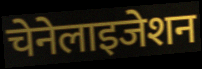
चेनेलाइजेशन